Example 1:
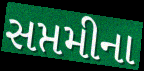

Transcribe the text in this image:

સપ્તમીના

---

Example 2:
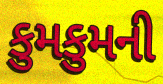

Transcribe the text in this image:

કુમકુમની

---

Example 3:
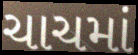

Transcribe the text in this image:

ચાચમાં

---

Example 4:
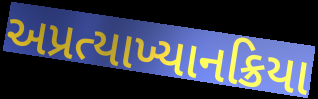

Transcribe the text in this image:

અપ્રત્યાખ્યાનક્રિયા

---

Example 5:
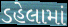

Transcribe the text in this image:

ડહેલામાં